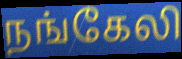
நங்கேலி